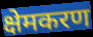
क्षेमकरण